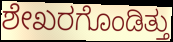
ಶೇಖರಗೊಂಡಿತ್ತು